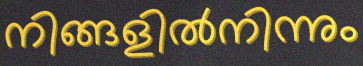
നിങ്ങളിൽനിന്നും